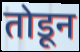
तोडून